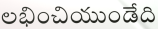
లభించియుండేది